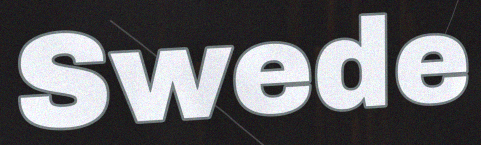
Swede